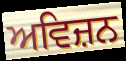
ਅਵਿਜ਼ਨ